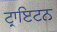
ਟ੍ਰਾਇਟਨ